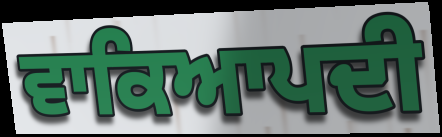
ਵਾਕਿਆਪਦੀ